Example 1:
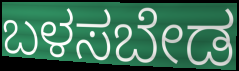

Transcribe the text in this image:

ಬಳಸಬೇಡ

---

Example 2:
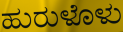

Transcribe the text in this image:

ಹುರುಳೊಳು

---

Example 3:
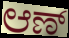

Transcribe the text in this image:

ಆಣ್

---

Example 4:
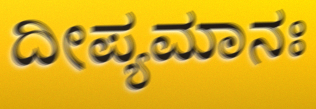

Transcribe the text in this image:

ದೀಪ್ಯಮಾನಃ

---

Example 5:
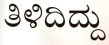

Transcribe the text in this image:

ತಿಳಿದಿದ್ದು